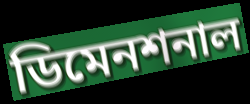
ডিমেনশনাল